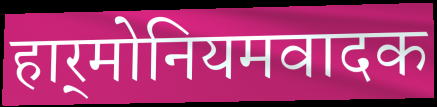
हार्मोनियमवादक